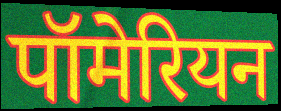
पॉमेरियन